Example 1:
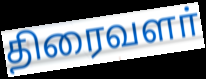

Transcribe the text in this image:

திரைவளர்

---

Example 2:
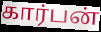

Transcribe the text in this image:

கார்பன்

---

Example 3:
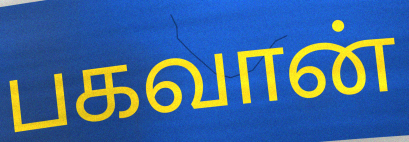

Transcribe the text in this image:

பகவான்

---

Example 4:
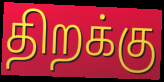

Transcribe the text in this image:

திறக்கு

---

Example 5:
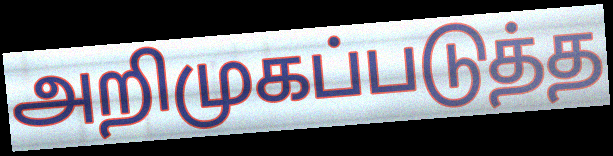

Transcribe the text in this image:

அறிமுகப்படுத்த